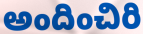
అందించిరి